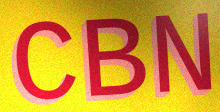
CBN